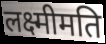
लक्ष्मीमति